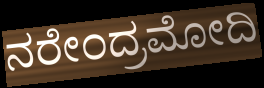
ನರೇಂದ್ರಮೋದಿ